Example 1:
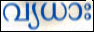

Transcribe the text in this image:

വ്യധാഃ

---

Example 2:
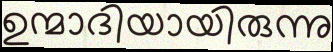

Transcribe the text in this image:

ഉന്മാദിയായിരുന്നു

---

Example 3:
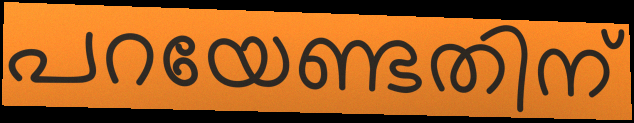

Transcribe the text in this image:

പറയേണ്ടതിന്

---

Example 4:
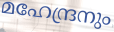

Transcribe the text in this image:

മഹേന്ദ്രനും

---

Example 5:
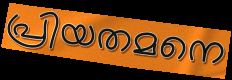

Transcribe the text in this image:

പ്രിയതമനെ